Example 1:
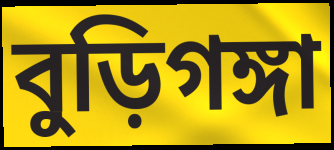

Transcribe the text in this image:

বুড়িগঙ্গা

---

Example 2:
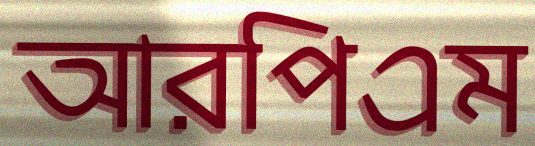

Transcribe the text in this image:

আরপিএম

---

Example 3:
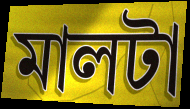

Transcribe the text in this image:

মালটা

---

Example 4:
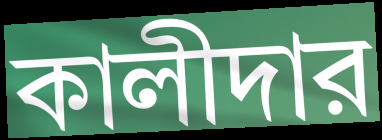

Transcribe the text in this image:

কালীদার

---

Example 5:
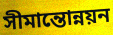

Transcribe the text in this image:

সীমান্তোন্নয়ন